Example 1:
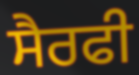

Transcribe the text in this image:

ਸੈਰਫੀ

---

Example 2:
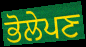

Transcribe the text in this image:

ਭੋਲੇਪਣ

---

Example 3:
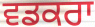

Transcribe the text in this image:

ਵਡਕਰਾ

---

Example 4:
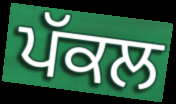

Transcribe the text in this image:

ਪੱਕਲ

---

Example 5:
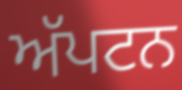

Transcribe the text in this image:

ਅੱਪਟਨ